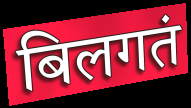
बिलगतं